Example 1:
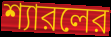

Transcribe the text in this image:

শ্যারলের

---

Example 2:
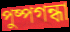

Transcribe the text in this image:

পুষ্পগন্ধা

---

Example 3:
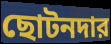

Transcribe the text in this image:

ছোটনদার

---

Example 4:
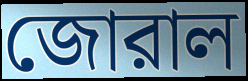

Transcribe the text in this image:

জোরাল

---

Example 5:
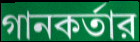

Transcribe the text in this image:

গানকর্তার